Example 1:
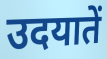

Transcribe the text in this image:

उदयातें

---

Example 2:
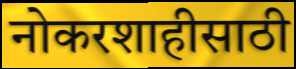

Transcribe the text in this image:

नोकरशाहीसाठी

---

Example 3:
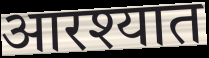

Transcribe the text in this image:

आरश्यात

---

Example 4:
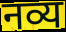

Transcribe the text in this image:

नव्य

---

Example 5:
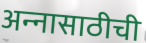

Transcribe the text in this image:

अन्नासाठीची